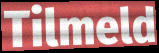
Tilmeld